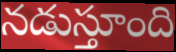
నడుస్తూంది